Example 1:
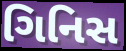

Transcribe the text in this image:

ગિનિસ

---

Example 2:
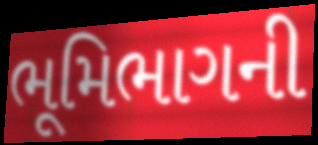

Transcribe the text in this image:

ભૂમિભાગની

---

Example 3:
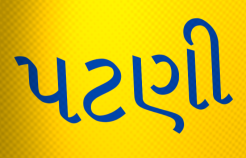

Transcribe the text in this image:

પટણી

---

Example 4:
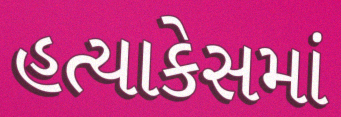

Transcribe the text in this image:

હત્યાકેસમાં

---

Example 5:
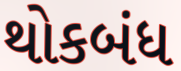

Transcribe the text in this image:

થોકબંધ